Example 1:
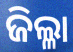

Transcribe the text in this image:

ଜିଲ୍ଳା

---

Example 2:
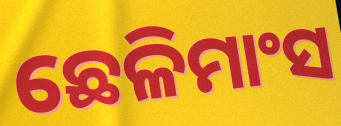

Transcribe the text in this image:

ଛେଳିମାଂସ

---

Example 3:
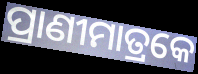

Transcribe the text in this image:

ପ୍ରାଣୀମାତ୍ରକେ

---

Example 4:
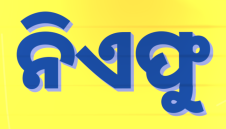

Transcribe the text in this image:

ନିଏଫୁ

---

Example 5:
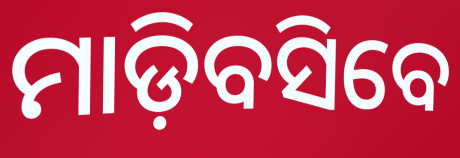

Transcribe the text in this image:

ମାଡ଼ିବସିବେ